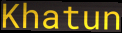
Khatun